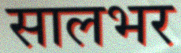
सालभर